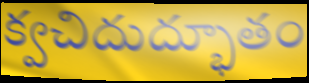
క్వచిదుద్భూతం